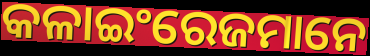
କଳାଇଂରେଜମାନେ